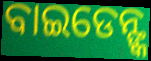
ବାଇଡେନ୍ଙ୍କ